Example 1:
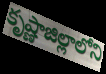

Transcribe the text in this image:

కృష్ణాజిల్లాలోని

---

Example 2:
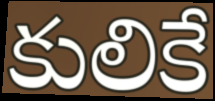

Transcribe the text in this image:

కులికే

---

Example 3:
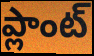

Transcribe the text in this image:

ప్లాంట్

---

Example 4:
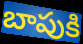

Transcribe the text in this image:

బాపుకి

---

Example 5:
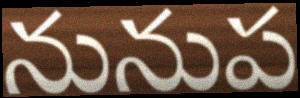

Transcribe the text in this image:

నునుప